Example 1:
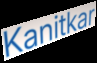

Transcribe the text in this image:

Kanitkar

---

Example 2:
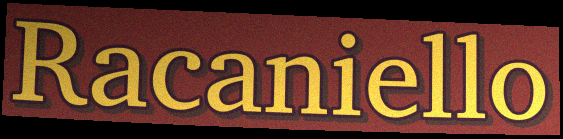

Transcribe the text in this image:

Racaniello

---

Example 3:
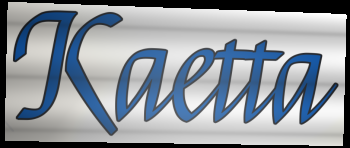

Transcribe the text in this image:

Kaetta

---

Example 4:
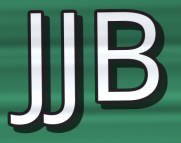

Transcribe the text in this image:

JJB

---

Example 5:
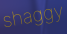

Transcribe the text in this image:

shaggy